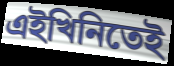
এইখিনিতেই